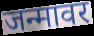
जन्मावर